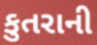
કુતરાની